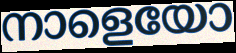
നാളെയോ